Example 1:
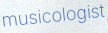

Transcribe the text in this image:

musicologist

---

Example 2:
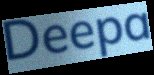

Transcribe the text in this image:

Deepa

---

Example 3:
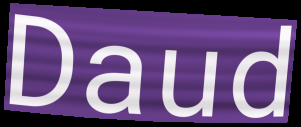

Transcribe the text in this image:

Daud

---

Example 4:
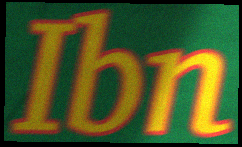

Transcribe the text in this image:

Ibn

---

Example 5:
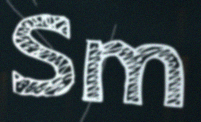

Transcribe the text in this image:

Sm